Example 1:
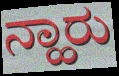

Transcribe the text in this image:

ನ್ಹಾರು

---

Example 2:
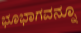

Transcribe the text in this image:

ಭೂಭಾಗವನ್ನೂ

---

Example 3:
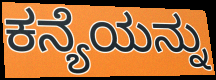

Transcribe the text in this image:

ಕನ್ಯೆಯನ್ನು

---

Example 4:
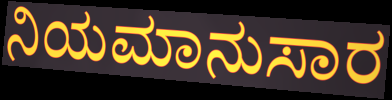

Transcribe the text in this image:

ನಿಯಮಾನುಸಾರ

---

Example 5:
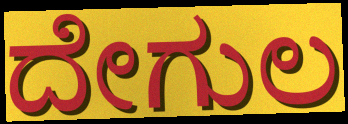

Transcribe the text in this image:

ದೇಗುಲ